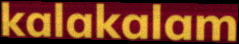
kalakalam